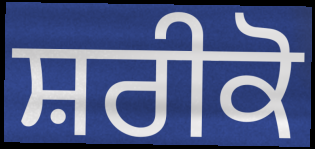
ਸ਼ਰੀਕੋ